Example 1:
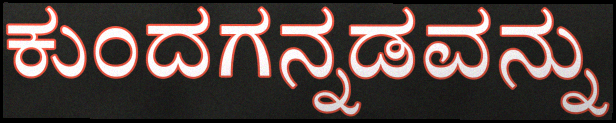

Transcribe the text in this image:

ಕುಂದಗನ್ನಡವನ್ನು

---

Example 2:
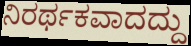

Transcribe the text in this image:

ನಿರರ್ಥಕವಾದದ್ದು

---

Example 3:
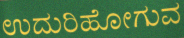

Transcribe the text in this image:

ಉದುರಿಹೋಗುವ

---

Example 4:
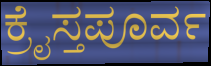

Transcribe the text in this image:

ಕ್ರೈಸ್ತಪೂರ್ವ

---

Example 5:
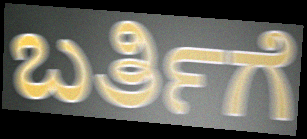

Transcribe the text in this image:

ಬರ್ತಿಗೆ